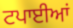
ਟਪਾਈਆਂ